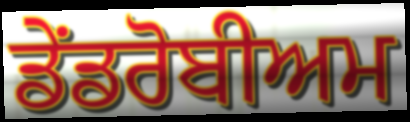
ਡੇਂਡਰੋਬੀਅਮ